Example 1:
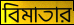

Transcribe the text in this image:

বিমাতার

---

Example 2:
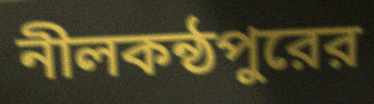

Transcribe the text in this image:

নীলকন্ঠপুরের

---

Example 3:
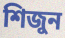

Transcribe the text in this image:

শিজুন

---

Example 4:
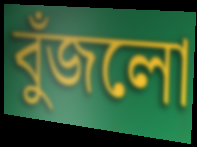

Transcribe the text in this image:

বুঁজলো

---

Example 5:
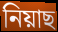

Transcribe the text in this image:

নিয়াছ